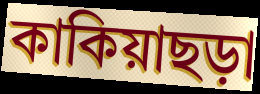
কাকিয়াছড়া